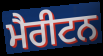
ਮੈਰੀਟਨ